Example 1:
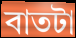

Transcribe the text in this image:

বাতটা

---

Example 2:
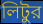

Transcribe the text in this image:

লিটুর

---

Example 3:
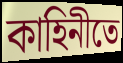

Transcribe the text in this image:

কাহিনীতে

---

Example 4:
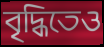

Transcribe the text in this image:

বৃদ্ধিতেও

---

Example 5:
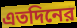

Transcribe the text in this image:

এতদিনের